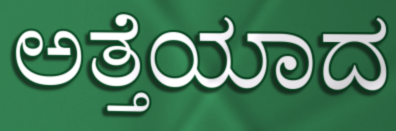
ಅತ್ತೆಯಾದ